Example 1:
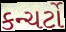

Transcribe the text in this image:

કન્ચર્ટો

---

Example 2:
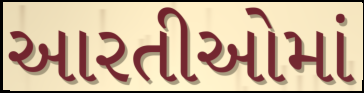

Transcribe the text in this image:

આરતીઓમાં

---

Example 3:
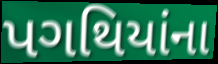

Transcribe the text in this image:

પગથિયાંના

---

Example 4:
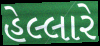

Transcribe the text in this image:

હેલ્લારે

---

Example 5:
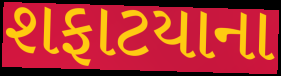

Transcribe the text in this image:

શફાટયાના